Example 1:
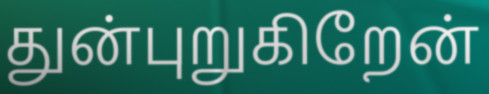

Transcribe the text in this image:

துன்புறுகிறேன்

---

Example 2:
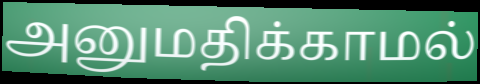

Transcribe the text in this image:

அனுமதிக்காமல்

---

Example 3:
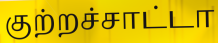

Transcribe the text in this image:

குற்றச்சாட்டா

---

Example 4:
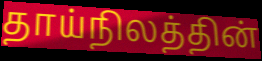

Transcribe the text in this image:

தாய்நிலத்தின்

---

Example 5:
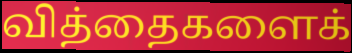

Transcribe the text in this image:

வித்தைகளைக்